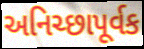
અનિચ્છાપૂર્વક